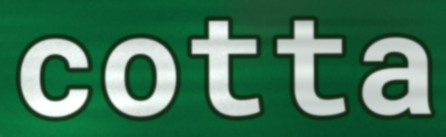
cotta